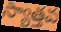
స్యాత్తవ